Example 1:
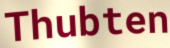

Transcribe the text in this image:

Thubten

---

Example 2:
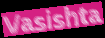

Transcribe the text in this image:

Vasishta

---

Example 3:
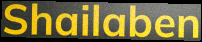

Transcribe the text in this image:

Shailaben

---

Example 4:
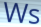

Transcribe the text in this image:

Ws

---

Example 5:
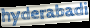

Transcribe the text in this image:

hyderabadi